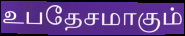
உபதேசமாகும்